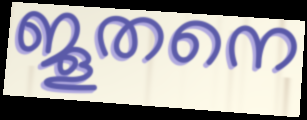
ജൂതനെ